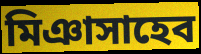
মিঞাসাহেব